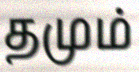
தமும்